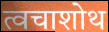
त्वचाशोथ